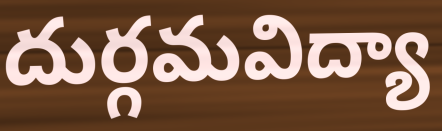
దుర్గమవిద్యా